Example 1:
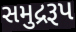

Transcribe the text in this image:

સમુદ્રરૂપ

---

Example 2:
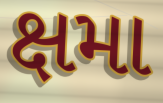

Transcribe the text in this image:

ક્ષમા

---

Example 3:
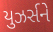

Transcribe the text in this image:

યુઝર્સને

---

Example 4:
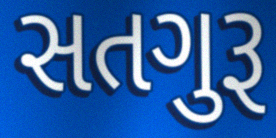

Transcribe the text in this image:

સતગુરૂ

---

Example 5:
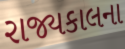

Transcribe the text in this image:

રાજ્યકાલના